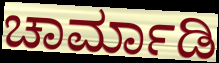
ಚಾರ್ಮಾಡಿ